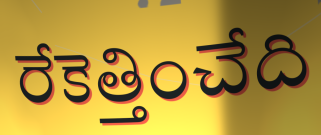
రేకెత్తించేది